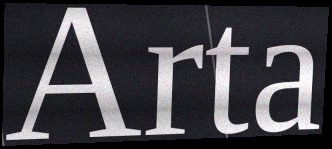
Arta